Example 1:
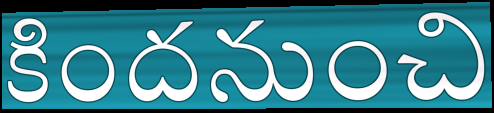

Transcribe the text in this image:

కిందనుంచి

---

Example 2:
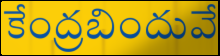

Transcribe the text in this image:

కేంద్రబిందువే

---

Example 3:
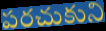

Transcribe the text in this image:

పరచుకుని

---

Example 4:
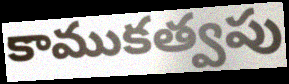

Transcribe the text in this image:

కాముకత్వపు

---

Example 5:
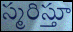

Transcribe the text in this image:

స్మరిస్తూ